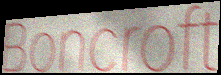
Boncroft